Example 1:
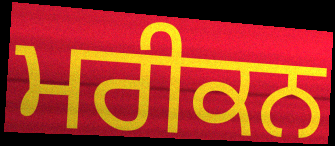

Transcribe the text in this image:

ਮਰੀਕਨ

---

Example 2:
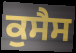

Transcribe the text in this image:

ਕੁਸੈਸ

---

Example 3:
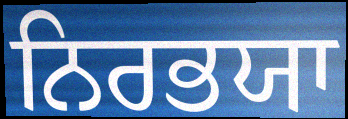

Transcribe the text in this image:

ਨਿਰਭਯਾ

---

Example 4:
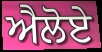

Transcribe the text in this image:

ਐਲੋਏ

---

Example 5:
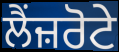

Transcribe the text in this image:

ਲੈਂਜ਼ਰੋਟੇ